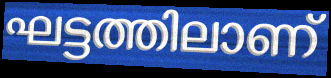
ഘട്ടത്തിലാണ്